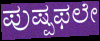
ಪುಷ್ಪಫಲೇ